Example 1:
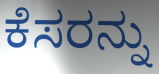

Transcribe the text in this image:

ಕೆಸರನ್ನು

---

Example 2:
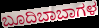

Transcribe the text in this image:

ಬೂದಿಬಾಬಾಗಳ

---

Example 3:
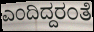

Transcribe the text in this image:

ಎಂದಿದ್ದರಂತೆ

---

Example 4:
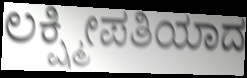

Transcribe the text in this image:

ಲಕ್ಷ್ಮೀಪತಿಯಾದ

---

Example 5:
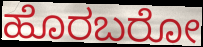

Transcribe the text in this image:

ಹೊರಬರೋ